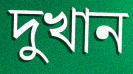
দুখান